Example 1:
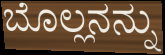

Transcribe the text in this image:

ಬೊಲ್ಲನನ್ನು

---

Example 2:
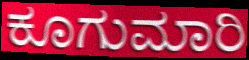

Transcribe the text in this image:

ಕೂಗುಮಾರಿ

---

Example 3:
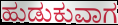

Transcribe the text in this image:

ಹುಡುಕುವಾಗ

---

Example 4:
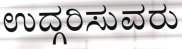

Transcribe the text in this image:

ಉದ್ಗರಿಸುವರು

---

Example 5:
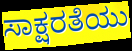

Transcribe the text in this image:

ಸಾಕ್ಷರತೆಯು